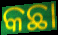
କଛା